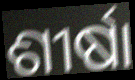
ଶୀର୍ଷା